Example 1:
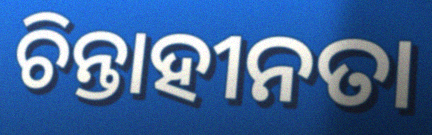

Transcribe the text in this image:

ଚିନ୍ତାହୀନତା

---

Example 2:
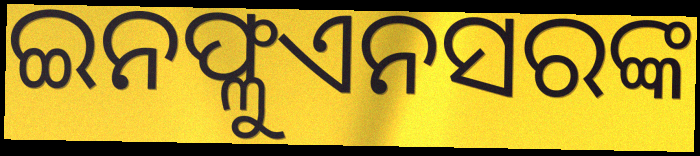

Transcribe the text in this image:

ଇନଫ୍ଳୁଏନସରଙ୍କ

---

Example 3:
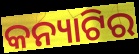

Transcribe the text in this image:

କନ୍ୟାଟିର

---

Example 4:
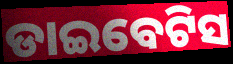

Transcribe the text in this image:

ଡାଇବେଟିସ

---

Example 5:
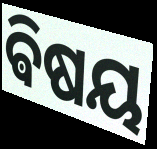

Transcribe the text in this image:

ଵିଷୟ